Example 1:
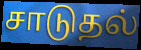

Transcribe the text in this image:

சாடுதல்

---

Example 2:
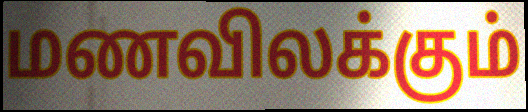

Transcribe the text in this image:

மணவிலக்கும்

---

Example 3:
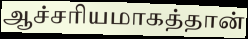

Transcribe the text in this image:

ஆச்சரியமாகத்தான்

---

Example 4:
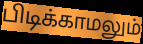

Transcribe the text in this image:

பிடிக்காமலும்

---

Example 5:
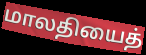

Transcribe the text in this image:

மாலதியைத்